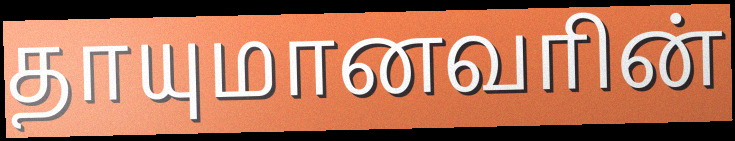
தாயுமானவரின்